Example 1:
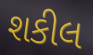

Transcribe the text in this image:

શકીલ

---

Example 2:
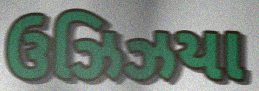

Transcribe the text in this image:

ઉઝિઝયા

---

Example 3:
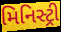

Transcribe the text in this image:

મિનિસ્ટ્રી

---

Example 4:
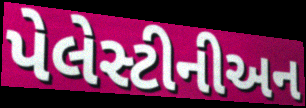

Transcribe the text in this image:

પેલેસ્ટીનીઅન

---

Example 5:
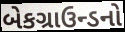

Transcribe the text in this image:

બેકગ્રાઉન્ડનો